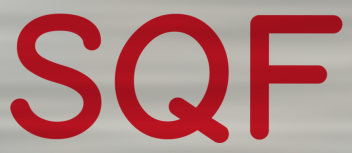
SQF